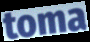
toma